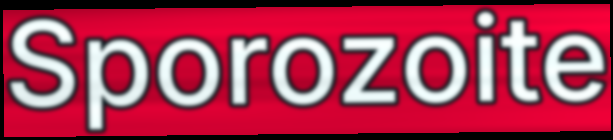
Sporozoite